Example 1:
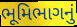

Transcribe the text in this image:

ભૂમિભાગનું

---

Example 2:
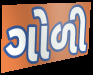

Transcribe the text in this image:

ગોળી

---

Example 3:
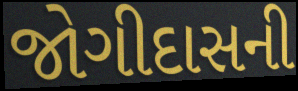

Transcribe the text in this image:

જોગીદાસની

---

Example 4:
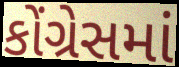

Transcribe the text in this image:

કોંગ્રેસમાં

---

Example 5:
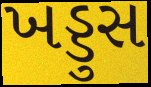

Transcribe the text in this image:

ખડ્ડુસ